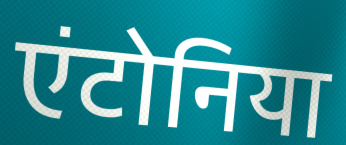
एंटोनिया